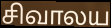
சிவாலய